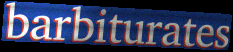
barbiturates